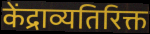
केंद्राव्यतिरिक्त